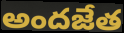
అందజేత